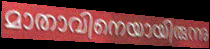
മാതാവിനെയായിരുന്നു